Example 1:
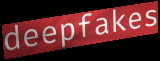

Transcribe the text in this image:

deepfakes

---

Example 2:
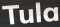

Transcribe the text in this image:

Tula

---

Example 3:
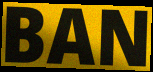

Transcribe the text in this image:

BAN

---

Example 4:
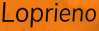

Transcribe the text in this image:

Loprieno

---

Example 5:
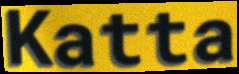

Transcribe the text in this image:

Katta